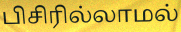
பிசிரில்லாமல்